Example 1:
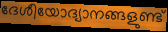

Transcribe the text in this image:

ദേശീയോദ്യാനങ്ങളുണ്ട്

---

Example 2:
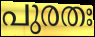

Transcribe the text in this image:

പുരതഃ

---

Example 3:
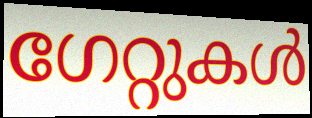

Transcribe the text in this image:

ഗേറ്റുകൾ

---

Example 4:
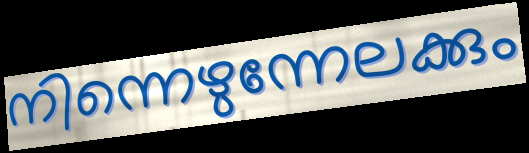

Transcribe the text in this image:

നിന്നെഴുന്നേലക്കും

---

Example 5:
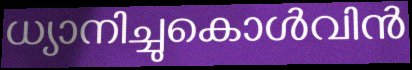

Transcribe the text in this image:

ധ്യാനിച്ചുകൊൾവിൻ